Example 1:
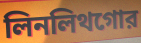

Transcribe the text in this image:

লিনলিথগোর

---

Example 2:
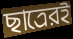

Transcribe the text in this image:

ছাত্রেরই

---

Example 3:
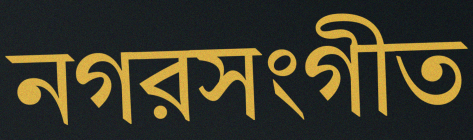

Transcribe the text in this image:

নগরসংগীত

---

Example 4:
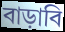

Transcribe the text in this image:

বাড়াবি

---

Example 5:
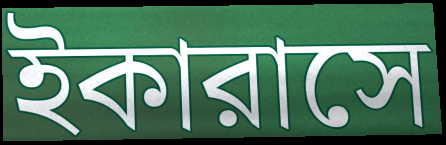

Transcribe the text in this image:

ইকারাসে